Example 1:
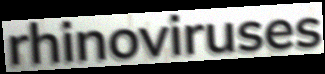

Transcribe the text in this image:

rhinoviruses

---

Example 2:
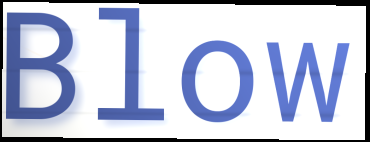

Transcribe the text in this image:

Blow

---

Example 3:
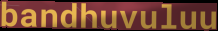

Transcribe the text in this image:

bandhuvuluu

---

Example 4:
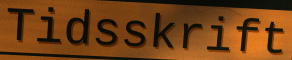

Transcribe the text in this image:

Tidsskrift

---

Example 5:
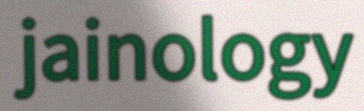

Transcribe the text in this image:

jainology